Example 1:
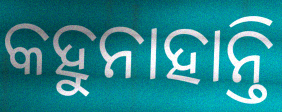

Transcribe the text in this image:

କହୁନାହାନ୍ତି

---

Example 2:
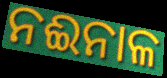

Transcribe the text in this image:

ନଈନାଳ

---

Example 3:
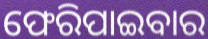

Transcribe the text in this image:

ଫେରିପାଇବାର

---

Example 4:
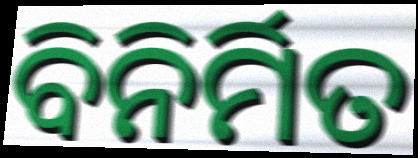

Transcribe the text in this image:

ବିନିର୍ମିତ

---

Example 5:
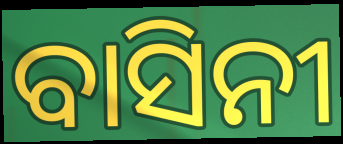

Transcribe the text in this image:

ବାସିନୀ